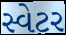
સ્વેટર